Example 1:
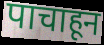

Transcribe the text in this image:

पाचाहून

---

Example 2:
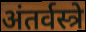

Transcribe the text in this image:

अंतर्वस्त्रे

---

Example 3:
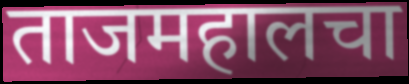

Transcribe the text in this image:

ताजमहालचा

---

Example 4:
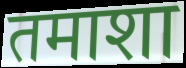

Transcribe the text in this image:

तमाशा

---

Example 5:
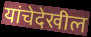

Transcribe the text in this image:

यांचेदेखील